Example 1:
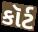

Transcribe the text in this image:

કૉર્ટ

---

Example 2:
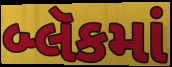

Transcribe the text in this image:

બ્લૅકમાં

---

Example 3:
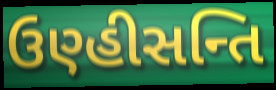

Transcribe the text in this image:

ઉણ્હીસન્તિ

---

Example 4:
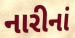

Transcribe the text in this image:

નારીનાં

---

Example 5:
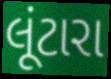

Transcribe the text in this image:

લૂંટારા